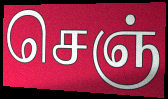
செஞ்